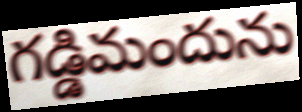
గడ్డిమందును